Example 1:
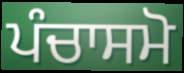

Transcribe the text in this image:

ਪੰਚਾਸਮੋ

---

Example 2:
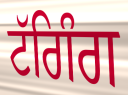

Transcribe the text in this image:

ਟੱਗਿੰਗ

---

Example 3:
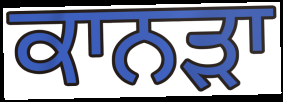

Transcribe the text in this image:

ਕਾਨੜਾ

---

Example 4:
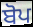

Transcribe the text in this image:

ਬੋਪ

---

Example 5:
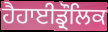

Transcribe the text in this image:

ਹੈਹਾਈਡ੍ਰੌਲਿਕ